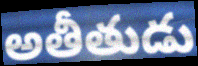
అతీతుడు